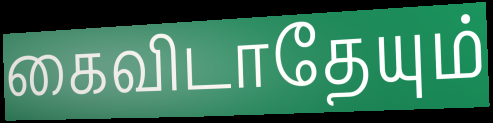
கைவிடாதேயும்